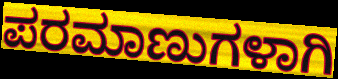
ಪರಮಾಣುಗಳಾಗಿ